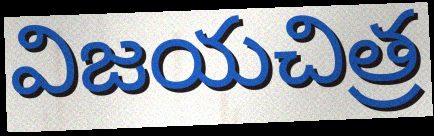
విజయచిత్ర